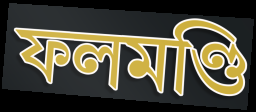
ফলমণ্ডি